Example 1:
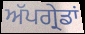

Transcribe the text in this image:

ਅੱਪਗ੍ਰੇਡਾਂ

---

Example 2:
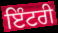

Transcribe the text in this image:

ਇੰਟਰੀ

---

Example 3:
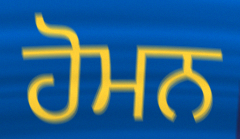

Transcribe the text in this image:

ਹੋਮਨ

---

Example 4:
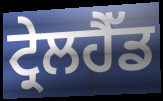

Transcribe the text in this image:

ਟ੍ਰੇਲਹੈੱਡ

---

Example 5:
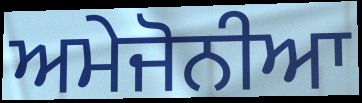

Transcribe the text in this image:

ਅਮੇਜੋਨੀਆ